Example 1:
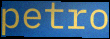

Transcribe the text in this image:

petro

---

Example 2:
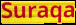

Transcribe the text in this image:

Suraqa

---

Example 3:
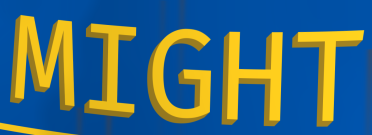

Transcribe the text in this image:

MIGHT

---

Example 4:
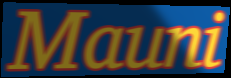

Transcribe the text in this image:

Mauni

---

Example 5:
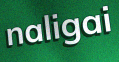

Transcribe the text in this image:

naligai